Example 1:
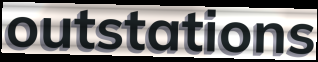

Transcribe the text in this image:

outstations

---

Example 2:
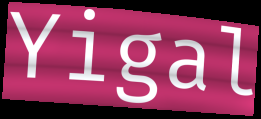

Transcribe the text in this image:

Yigal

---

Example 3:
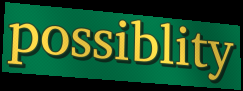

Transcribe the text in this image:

possiblity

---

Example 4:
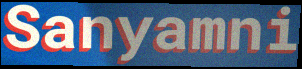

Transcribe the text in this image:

Sanyamni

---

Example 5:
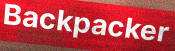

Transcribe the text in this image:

Backpacker